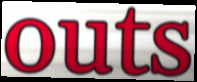
outs